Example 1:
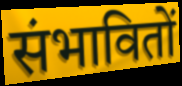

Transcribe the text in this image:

संभावितों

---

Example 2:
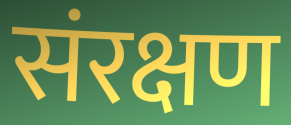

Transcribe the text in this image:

संरक्षण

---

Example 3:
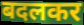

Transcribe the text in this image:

बदलकर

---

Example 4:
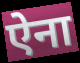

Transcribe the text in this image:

ऐना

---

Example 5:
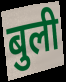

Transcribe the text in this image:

बुली